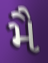
મૈ